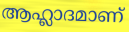
ആഹ്ലാദമാണ്